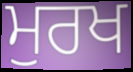
ਮੁਰਖ